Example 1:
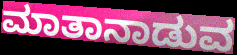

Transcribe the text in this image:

ಮಾತಾನಾಡುವ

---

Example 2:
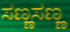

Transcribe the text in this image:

ಸಣ್ಣಸಣ್ಣ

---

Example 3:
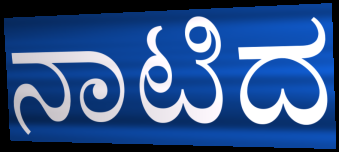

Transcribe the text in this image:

ನಾಟಿದ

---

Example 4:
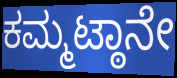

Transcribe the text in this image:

ಕಮ್ಮಟ್ಠಾನೇ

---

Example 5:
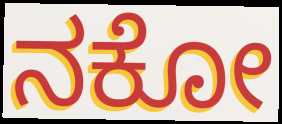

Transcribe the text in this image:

ನಕೋ